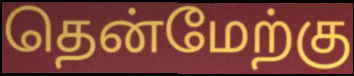
தென்மேற்கு